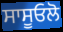
ਸਾਸੂਓਲੋ